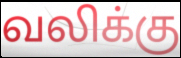
வலிக்கு